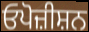
ਓਪੋਜ਼ੀਸ਼ਨ